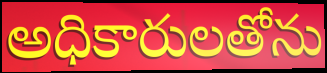
అధికారులతోను